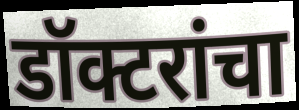
डॉक्टरांचा